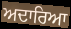
ਅਦਾਰਿਆ